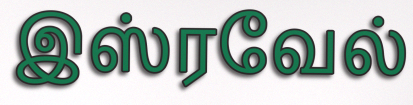
இஸ்ரவேல்